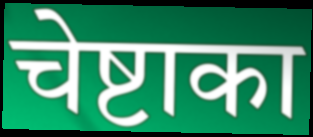
चेष्टाका